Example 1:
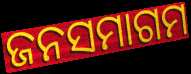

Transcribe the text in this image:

ଜନସମାଗମ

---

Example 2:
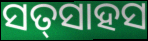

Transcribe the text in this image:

ସତ୍‍ସାହସ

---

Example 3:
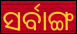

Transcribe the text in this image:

ସର୍ବାଙ୍ଗ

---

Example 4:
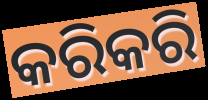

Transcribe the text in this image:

କରିକରି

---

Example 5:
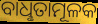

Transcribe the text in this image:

ବାଧୢତାମୂଳକ